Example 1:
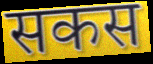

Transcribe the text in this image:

सकस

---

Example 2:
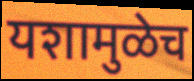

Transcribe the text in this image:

यशामुळेच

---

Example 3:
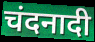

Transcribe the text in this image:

चंदनादी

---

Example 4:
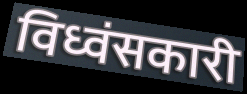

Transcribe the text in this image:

विध्वंसकारी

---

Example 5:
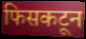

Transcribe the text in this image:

फिसकटून